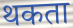
थकता